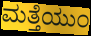
ಮತ್ತೆಯುಂ